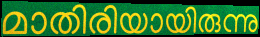
മാതിരിയായിരുന്നു